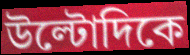
উল্টোদিকে